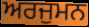
ਅਰਜੁਮਨ